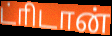
ட்ரிடான்